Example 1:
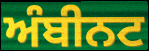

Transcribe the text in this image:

ਅੰਬੀਨਟ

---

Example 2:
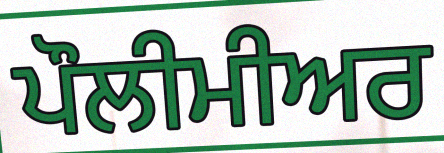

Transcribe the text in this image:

ਪੌਲੀਮੀਅਰ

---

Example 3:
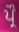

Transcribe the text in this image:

ਪ੍ਰੌ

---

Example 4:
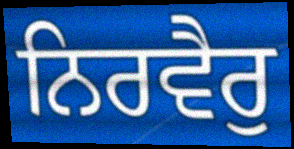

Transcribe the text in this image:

ਨਿਰਵੈਰੁ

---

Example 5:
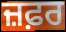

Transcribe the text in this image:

ਜ਼ਫ਼ਰ